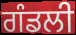
ਗੰਡਲੀ